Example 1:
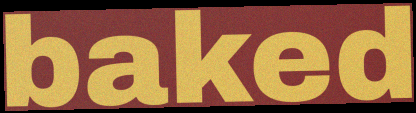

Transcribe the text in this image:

baked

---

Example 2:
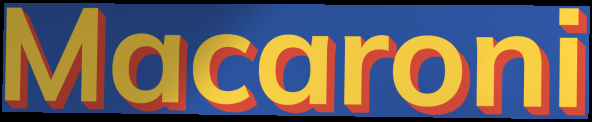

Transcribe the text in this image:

Macaroni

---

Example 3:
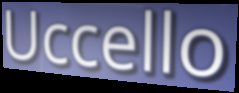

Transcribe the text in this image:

Uccello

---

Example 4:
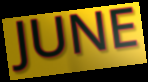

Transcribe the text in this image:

JUNE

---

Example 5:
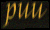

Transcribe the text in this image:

puu